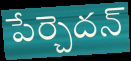
పేర్చెదన్